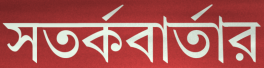
সতর্কবার্তার